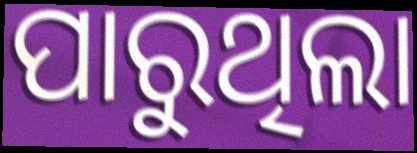
ପାରୁଥିଲା